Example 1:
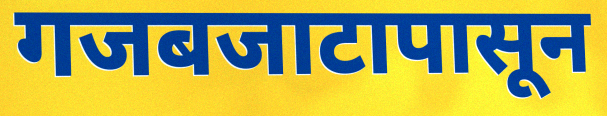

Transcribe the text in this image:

गजबजाटापासून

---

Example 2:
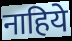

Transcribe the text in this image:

नाहिये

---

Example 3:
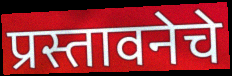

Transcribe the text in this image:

प्रस्तावनेचे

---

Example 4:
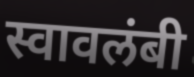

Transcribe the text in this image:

स्वावलंबी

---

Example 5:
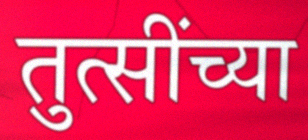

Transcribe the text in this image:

तुत्सींच्या